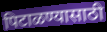
पिटाळण्यासाठी